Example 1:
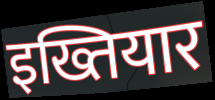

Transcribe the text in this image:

इख्तियार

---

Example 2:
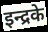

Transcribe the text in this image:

इन्द्रके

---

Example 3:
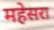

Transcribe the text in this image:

महेसरा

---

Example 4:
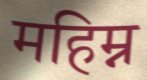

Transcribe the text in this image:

महिम्न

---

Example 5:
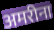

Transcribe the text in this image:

अमरीना